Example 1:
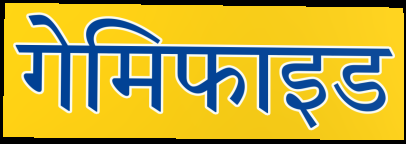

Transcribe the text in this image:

गेमिफाइड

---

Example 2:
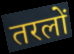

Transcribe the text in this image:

तरलों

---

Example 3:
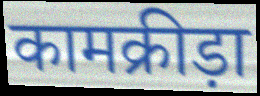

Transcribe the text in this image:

कामक्रीड़ा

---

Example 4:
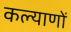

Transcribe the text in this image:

कल्याणों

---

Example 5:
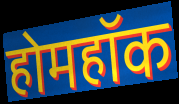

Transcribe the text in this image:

होमहॉक